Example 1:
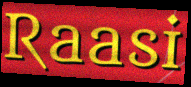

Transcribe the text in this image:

Raasi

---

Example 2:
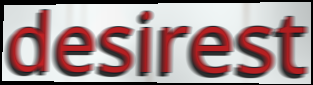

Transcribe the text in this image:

desirest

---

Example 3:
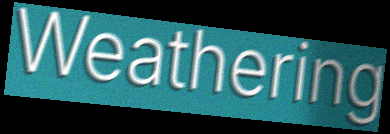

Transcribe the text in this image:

Weathering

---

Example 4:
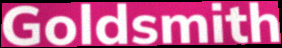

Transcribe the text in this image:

Goldsmith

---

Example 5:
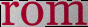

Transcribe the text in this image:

rom